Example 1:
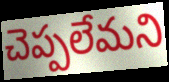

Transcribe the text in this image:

చెప్పలేమని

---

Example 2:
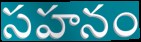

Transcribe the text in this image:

సహనం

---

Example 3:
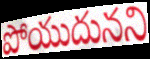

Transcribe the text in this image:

పోయుదునని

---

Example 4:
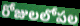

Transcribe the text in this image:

రోజులలోపల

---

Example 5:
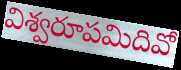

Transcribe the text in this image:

విశ్వరూపమిదివో